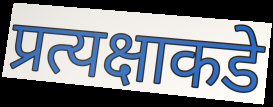
प्रत्यक्षाकडे